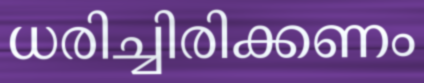
ധരിച്ചിരിക്കണം